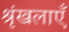
श्रृंखलाएँ